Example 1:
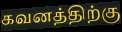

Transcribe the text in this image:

கவனத்திற்கு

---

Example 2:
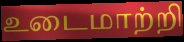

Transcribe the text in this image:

உடைமாற்றி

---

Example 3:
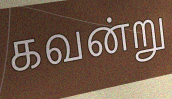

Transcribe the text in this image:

கவன்று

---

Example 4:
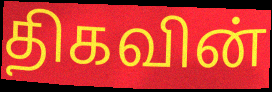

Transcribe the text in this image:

திகவின்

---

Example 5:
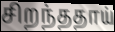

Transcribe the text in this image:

சிறந்ததாய்